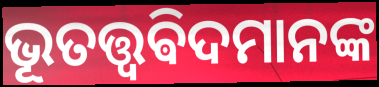
ଭୂତତ୍ତ୍ୱଵିଦମାନଙ୍କ